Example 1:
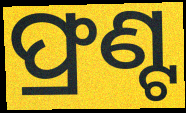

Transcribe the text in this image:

ଫ୍ରଣ୍ଟ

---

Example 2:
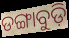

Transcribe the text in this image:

ଡଙ୍ଗାବୁଡ଼ି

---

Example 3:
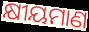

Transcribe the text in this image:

କ୍ଷୀୟମାଣ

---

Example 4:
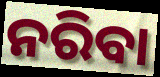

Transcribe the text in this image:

ନରିବା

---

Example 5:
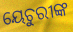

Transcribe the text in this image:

ୟେଚୁରୀଙ୍କ